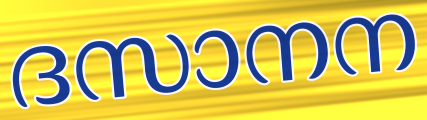
ദസാനന